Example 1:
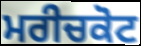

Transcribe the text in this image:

ਮਰੀਚਕੋਟ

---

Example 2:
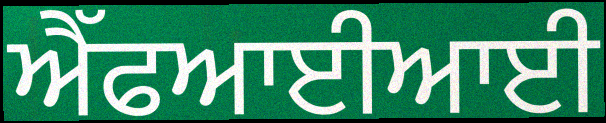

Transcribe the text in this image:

ਐੱਫਆਈਆਈ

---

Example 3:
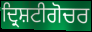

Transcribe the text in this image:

ਦ੍ਰਿਸ਼ਟੀਗੋਚਰ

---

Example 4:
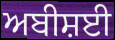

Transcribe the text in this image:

ਅਬੀਸ਼ਈ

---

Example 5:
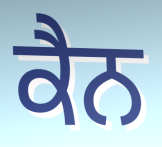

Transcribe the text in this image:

ਕੈਨ